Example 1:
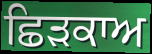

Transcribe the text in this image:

ਛਿੜਕਾਅ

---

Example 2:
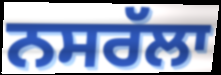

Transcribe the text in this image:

ਨਸਰੱਲਾ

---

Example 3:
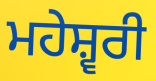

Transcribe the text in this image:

ਮਹੇਸ਼੍ਵਰੀ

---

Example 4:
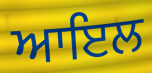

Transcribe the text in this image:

ਆਇਲ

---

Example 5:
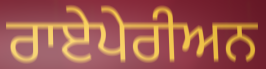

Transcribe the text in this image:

ਰਾਏਪੇਰੀਅਨ